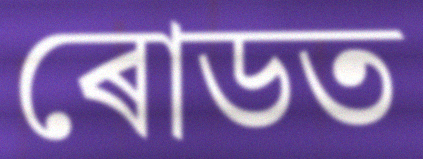
ৰোডত